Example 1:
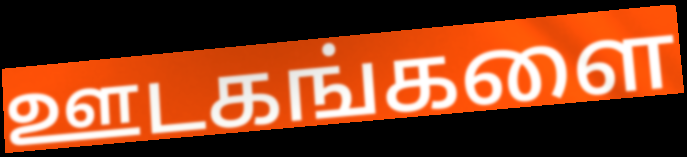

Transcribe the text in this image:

ஊடகங்களை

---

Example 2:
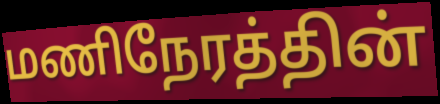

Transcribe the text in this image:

மணிநேரத்தின்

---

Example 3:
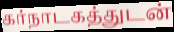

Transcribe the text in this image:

கர்நாடகத்துடன்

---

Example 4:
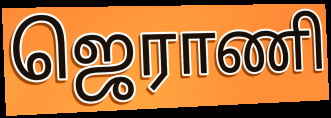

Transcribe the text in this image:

ஜெராணி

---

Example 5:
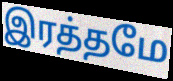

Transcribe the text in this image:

இரத்தமே